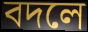
বদলে